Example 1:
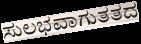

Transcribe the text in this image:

ಸುಲಭವಾಗುತತದ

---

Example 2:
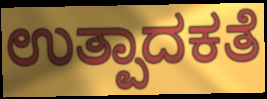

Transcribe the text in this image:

ಉತ್ಪಾದಕತೆ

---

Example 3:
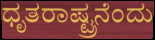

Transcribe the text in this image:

ಧೃತರಾಷ್ಟ್ರನೆಂದು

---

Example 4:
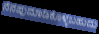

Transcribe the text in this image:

ನೆನಪುಮಾಡಿಕೊಳ್ಳಬಹುದು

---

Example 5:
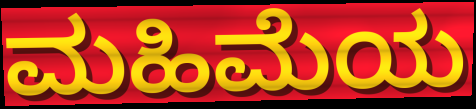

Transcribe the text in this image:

ಮಹಿಮೆಯ